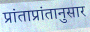
प्रांताप्रांतानुसार